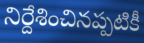
నిర్దేశించినప్పటికీ